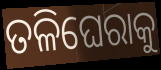
ତଳିଘେରାକୁ